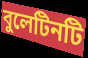
বুলেটিনটি